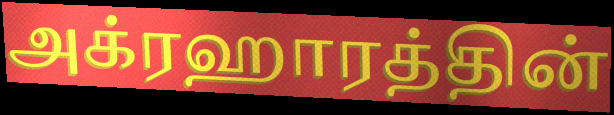
அக்ரஹாரத்தின்